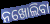
ନଖୋଲିବା